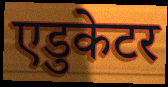
एडुकेटर